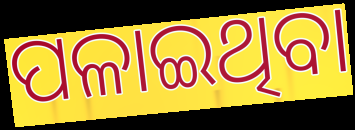
ପଳାଇଥିବା